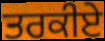
ਤਰਕੀਏ